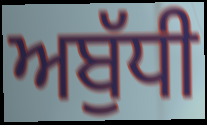
ਅਬੁੱਧੀ